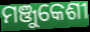
ମଞ୍ଜୁକେଶୀ